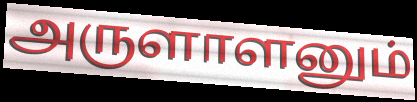
அருளாளனும்